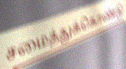
சமைத்துக்கொண்டு